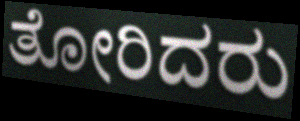
ತೋರಿದರು